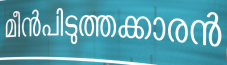
മീൻപിടുത്തക്കാരൻ